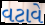
વટાવે